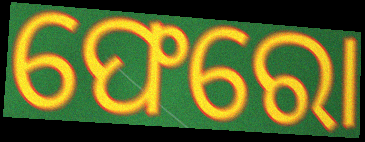
ଫେରୋ